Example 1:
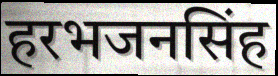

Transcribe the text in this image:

हरभजनसिंह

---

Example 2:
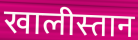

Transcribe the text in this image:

खालीस्तान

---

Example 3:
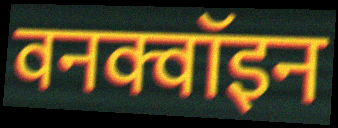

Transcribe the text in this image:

वनक्वॉइन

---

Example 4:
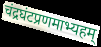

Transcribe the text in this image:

चंद्रघंटप्रणमाभ्यहम्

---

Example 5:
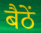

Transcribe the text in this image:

बैठें